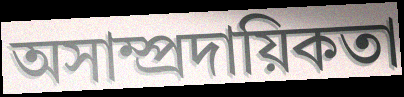
অসাম্প্রদায়িকতা